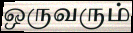
ஒருவரும்